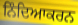
ਨਿੰਦਿਆਕਰਨ